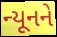
ન્યૂનને